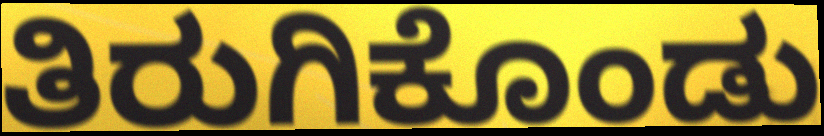
ತಿರುಗಿಕೊಂಡು